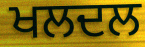
ਖਲਦਲ